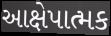
આક્ષેપાત્મક